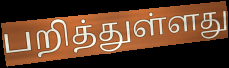
பறித்துள்ளது